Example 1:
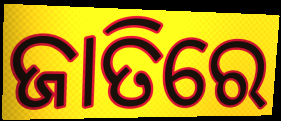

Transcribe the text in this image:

ଜାତିରେ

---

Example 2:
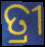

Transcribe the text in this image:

ତ୍ରୀ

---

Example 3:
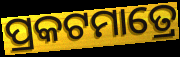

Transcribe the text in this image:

ପ୍ରକଟମାତ୍ରେ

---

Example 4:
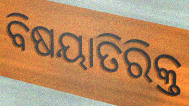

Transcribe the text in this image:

ବିଷୟାତିରିକ୍ତ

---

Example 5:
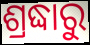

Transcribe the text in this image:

ଶ୍ରଦ୍ଧାରୁ